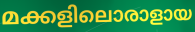
മക്കളിലൊരാളായ